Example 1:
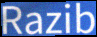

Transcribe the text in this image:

Razib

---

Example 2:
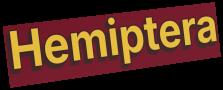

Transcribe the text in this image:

Hemiptera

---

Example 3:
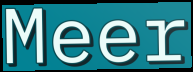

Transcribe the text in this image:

Meer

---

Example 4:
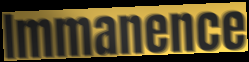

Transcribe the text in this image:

Immanence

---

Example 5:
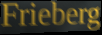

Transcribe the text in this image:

Frieberg